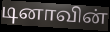
டினாவின்